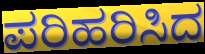
ಪರಿಹರಿಸಿದ